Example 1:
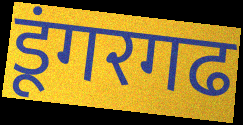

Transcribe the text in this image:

डूंगरगढ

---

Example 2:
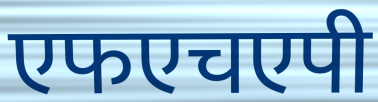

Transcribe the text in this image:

एफएचएपी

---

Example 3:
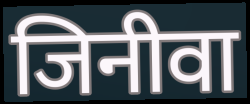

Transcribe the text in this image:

जिनीवा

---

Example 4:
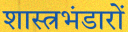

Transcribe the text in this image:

शास्त्रभंडारों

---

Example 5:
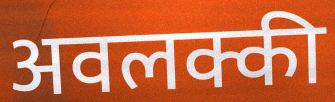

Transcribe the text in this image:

अवलक्की